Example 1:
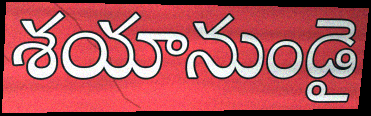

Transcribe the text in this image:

శయానుండై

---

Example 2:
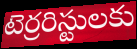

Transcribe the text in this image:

టెర్రరిస్టులకు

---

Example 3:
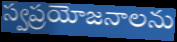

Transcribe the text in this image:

స్వప్రయోజనాలను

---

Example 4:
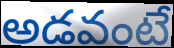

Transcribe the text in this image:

అడవంటే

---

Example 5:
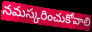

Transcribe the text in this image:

నమస్కరించుకోవాలి